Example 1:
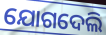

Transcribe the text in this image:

ଯୋଗଦେଲି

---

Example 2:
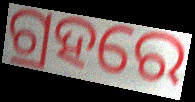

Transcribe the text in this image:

ଗ୍ରହରେ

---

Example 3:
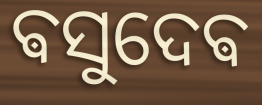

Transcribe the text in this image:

ଵସୁଦେଵ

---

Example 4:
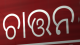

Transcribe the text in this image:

ଚାତ୍ତନ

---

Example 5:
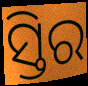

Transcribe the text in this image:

ସ୍ତିର